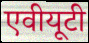
एवीयूटी